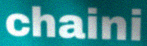
chaini